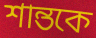
শান্তকে